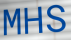
MHS